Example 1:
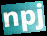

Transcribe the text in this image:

npj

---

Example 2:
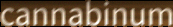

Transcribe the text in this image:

cannabinum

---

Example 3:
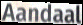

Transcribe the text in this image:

Aandaal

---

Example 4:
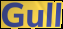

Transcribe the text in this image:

Gull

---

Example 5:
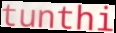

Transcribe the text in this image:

tunthi